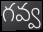
గవ్వ